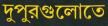
দুপুরগুলোতে